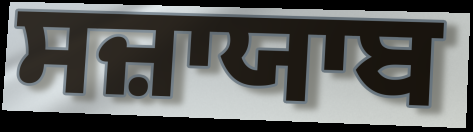
ਸਜ਼ਾਯਾਬ